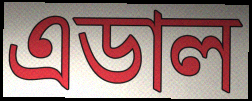
এডাল